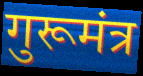
गुरूमंत्र